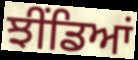
ਝੀਂਡਿਆਂ